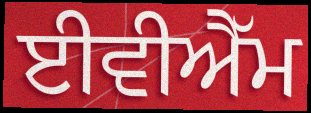
ਈਵੀਐੱਮ